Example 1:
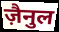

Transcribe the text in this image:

ज़ैनुल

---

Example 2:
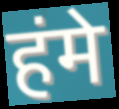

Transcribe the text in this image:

हंमे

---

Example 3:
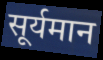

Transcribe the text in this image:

सूर्यमान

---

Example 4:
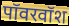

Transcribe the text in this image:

पॉवरवॉश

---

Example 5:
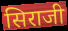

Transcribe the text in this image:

सिराजी